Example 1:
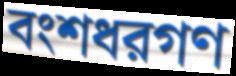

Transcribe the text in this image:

বংশধরগণ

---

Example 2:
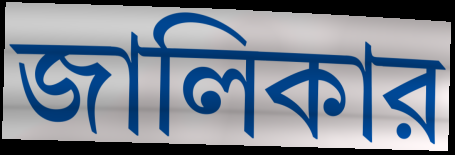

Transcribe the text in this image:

জালিকার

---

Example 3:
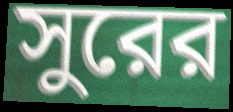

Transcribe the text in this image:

সুরের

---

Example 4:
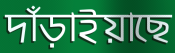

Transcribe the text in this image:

দাঁড়াইয়াছে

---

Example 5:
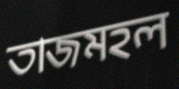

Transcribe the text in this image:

তাজমহল